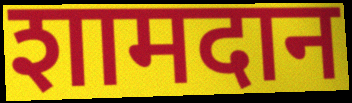
शामदान